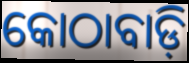
କୋଠାବାଡ଼ି